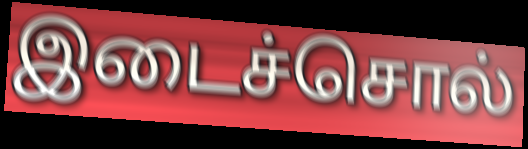
இடைச்சொல்